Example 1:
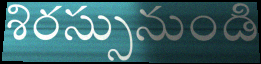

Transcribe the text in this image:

శిరస్సునుండి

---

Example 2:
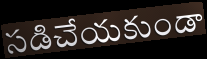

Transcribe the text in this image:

సడిచేయకుండా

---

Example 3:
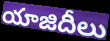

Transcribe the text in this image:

యాజిదీలు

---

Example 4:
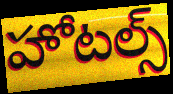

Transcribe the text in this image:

హోటల్స్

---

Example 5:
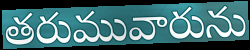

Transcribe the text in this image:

తరుమువారును